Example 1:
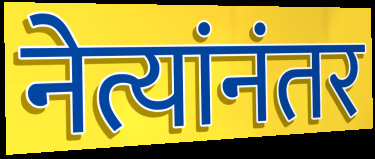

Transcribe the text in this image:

नेत्यांनंतर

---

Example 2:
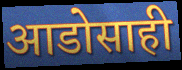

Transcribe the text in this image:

आडोसाही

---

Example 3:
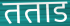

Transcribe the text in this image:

तताड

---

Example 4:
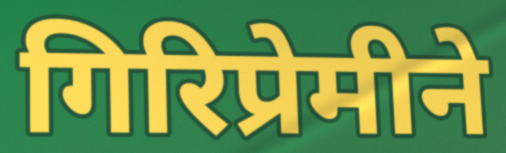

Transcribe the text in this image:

गिरिप्रेमीने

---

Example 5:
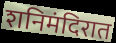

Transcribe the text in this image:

शनिमंदिरात